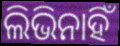
ଲିଭିନାହିଁ